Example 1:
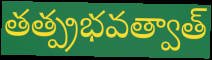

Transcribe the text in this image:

తత్ప్రభవత్వాత్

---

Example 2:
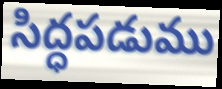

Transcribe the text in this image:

సిద్ధపడుము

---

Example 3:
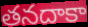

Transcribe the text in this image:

తనదాకా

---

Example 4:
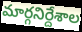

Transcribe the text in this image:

మార్గనిర్దేశాల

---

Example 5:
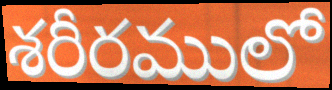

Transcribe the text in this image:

శరీరములో